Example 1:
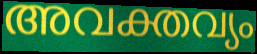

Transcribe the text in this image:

അവക്തവ്യം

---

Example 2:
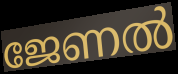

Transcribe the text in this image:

ജേണൽ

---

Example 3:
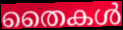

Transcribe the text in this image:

തൈകൾ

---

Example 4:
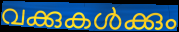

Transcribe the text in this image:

വക്കുകൾക്കും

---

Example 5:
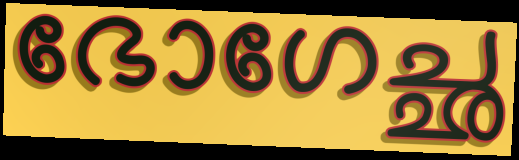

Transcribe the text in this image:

ഭോഗേച്ഛ